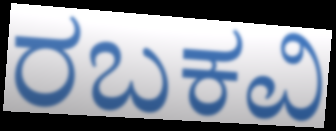
ರಬಕವಿ